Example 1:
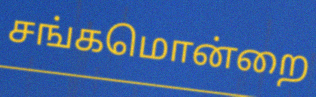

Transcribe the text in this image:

சங்கமொன்றை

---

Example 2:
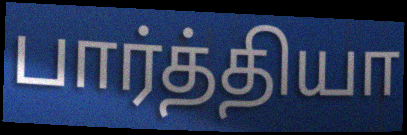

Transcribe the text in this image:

பார்த்தியா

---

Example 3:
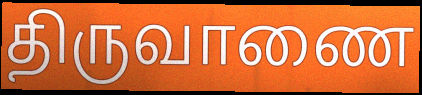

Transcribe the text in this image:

திருவாணை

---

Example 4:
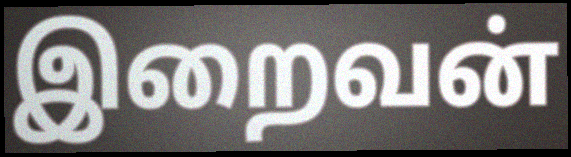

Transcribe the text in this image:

இறைவன்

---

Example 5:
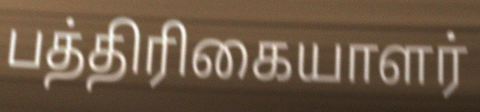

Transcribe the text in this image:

பத்திரிகையாளர்